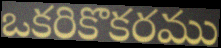
ఒకరికొకరము